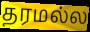
தரமல்ல